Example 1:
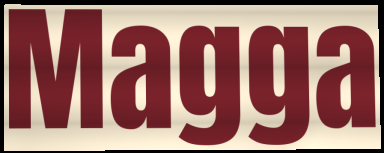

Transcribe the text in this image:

Magga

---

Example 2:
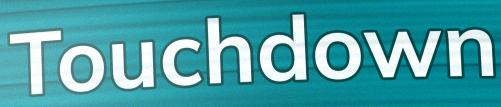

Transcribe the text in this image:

Touchdown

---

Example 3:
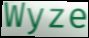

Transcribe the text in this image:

Wyze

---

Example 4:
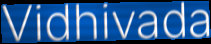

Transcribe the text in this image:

Vidhivada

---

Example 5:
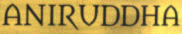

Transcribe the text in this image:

ANIRUDDHA